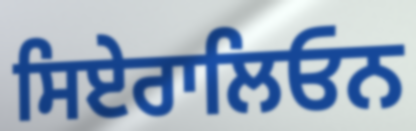
ਸਿਏਰਾਲਿਓਨ